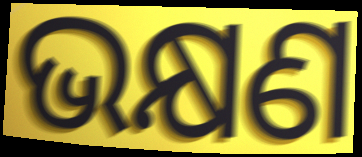
ଭକ୍ଷଣ